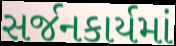
સર્જનકાર્યમાં